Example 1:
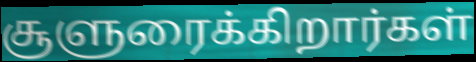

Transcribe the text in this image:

சூளுரைக்கிறார்கள்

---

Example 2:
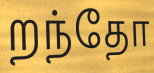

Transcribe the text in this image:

றந்தோ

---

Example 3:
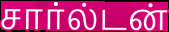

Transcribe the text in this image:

சார்ல்டன்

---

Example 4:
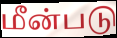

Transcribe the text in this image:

மீன்படு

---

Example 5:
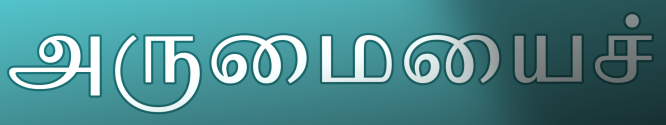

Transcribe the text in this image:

அருமையைச்